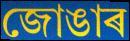
জোঙাৰ